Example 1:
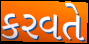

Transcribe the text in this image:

કરવતે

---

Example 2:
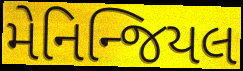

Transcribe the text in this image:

મેનિન્જિયલ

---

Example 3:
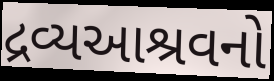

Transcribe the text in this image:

દ્રવ્યઆશ્રવનો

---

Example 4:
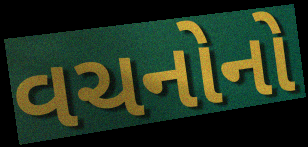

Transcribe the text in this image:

વચનોનો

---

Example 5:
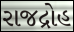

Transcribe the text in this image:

રાજદ્રોહ